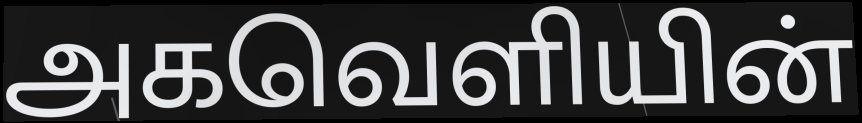
அகவெளியின்